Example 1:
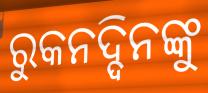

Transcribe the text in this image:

ରୁକନଦ୍ଦିନଙ୍କୁ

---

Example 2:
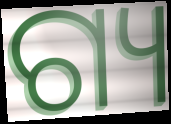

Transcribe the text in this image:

ଗ୍ୟ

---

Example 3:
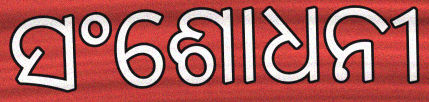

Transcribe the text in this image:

ସଂଶୋଧନୀ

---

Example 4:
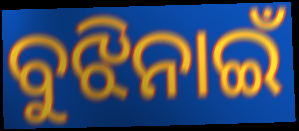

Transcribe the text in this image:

ବୁଝିନାଇଁ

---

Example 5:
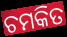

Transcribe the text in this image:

ଚମକିତ